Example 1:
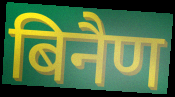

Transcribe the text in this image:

बिनैण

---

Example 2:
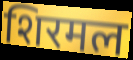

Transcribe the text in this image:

शिरमल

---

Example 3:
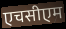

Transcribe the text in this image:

एचसीएम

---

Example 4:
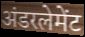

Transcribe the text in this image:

अंडरलेमेंट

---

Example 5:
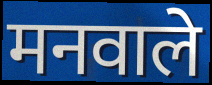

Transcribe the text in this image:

मनवाले